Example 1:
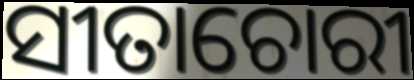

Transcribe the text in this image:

ସୀତାଚୋରୀ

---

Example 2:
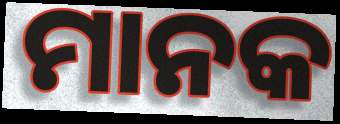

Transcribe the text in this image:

ମାନକ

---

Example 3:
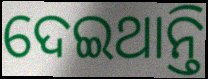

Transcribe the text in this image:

ଦେଇଥାନ୍ତି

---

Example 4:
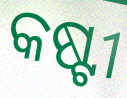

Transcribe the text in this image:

କଷ୍ଟୀ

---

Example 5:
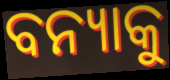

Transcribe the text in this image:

ବନ୍ୟାକୁ